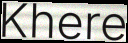
Khere